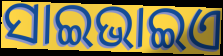
ସାଇଭାଇଏ